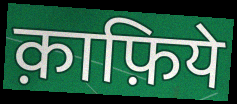
क़ाफ़िये